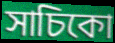
সাচিকো